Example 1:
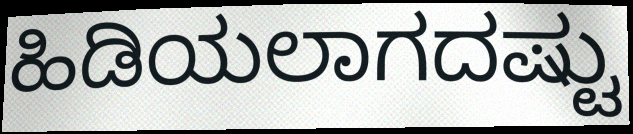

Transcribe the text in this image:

ಹಿಡಿಯಲಾಗದಷ್ಟು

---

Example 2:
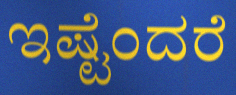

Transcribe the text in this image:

ಇಷ್ಟೆಂದರೆ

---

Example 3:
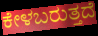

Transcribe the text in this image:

ಕೇಳಬರುತ್ತದೆ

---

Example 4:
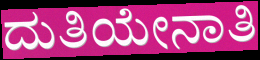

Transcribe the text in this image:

ದುತಿಯೇನಾತಿ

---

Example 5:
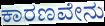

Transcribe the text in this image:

ಕಾರಣವೇನು